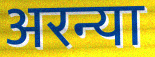
अरन्या